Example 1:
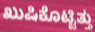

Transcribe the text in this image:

ಖುಷಿಕೊಟ್ಟಿತ್ತು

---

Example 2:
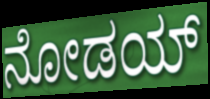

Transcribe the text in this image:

ನೋಡಯ್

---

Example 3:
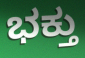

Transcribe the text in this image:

ಭಕ್ತು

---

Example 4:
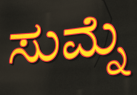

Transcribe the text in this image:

ಸುಮ್ನೆ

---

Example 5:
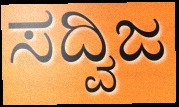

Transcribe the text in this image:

ಸದ್ವಿಜ